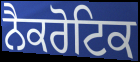
ਨੈਕਰੋਟਿਕ